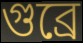
গুব্রে